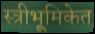
स्त्रीभूमिकेत